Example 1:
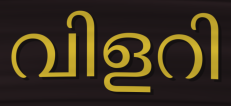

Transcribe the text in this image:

വിളറി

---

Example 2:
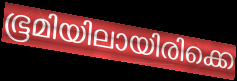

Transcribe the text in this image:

ഭൂമിയിലായിരിക്കെ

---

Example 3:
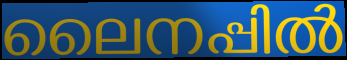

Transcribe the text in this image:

ലൈനപ്പിൽ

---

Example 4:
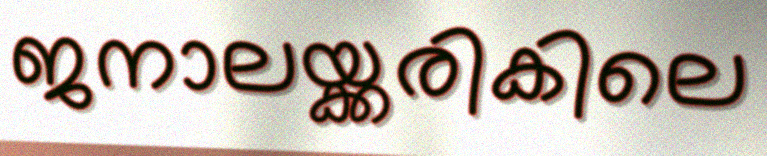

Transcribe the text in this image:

ജനാലയ്ക്കരികിലെ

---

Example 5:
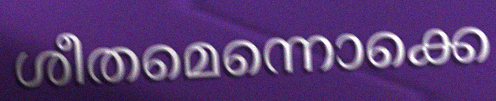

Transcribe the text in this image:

ശീതമെന്നൊക്കെ